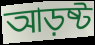
আড়ষ্ট